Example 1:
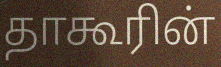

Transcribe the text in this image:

தாகூரின்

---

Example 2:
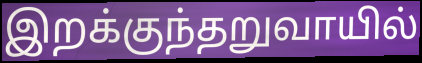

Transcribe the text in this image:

இறக்குந்தறுவாயில்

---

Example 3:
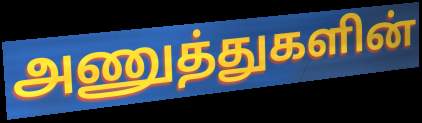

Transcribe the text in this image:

அணுத்துகளின்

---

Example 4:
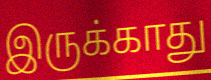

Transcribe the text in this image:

இருக்காது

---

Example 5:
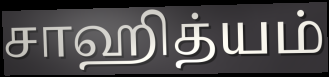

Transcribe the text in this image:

சாஹித்யம்